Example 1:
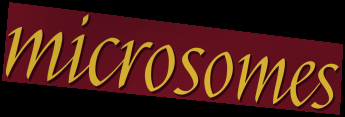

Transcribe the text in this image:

microsomes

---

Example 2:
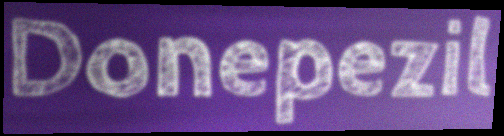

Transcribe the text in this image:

Donepezil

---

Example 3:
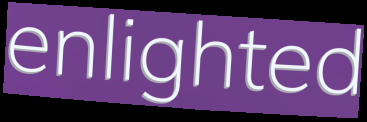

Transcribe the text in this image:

enlighted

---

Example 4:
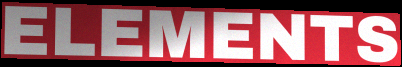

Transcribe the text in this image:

ELEMENTS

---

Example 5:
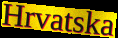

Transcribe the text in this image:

Hrvatska